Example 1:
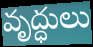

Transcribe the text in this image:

వృద్ధులు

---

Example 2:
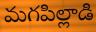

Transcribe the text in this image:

మగపిల్లాడి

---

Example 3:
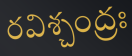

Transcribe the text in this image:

రవిశ్చంద్రః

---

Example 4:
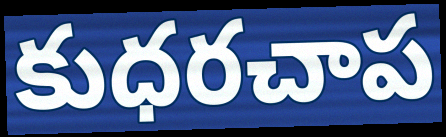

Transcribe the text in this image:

కుధరచాప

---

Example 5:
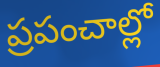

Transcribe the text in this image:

ప్రపంచాల్లో